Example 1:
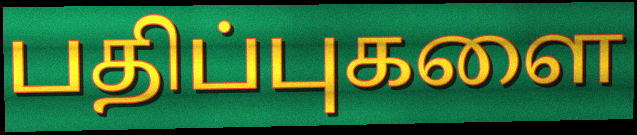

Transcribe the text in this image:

பதிப்புகளை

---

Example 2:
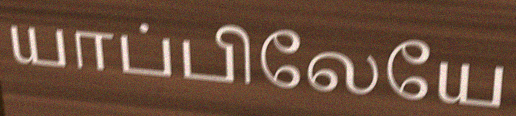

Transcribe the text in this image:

யாப்பிலேயே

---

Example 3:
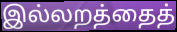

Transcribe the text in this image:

இல்லறத்தைத்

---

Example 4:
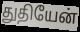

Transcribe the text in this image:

துதியேன்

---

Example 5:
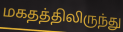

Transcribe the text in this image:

மகதத்திலிருந்து